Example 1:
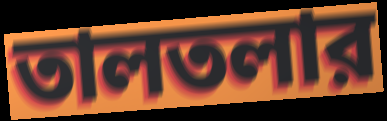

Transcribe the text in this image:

তালতলার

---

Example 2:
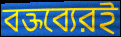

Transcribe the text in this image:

বক্তব্যেরই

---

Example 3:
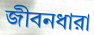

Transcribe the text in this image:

জীবনধারা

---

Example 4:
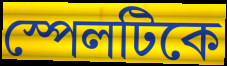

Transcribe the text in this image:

স্পেলটিকে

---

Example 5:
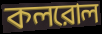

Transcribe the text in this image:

কলরোল